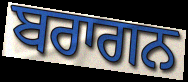
ਬਰਾਗਨ